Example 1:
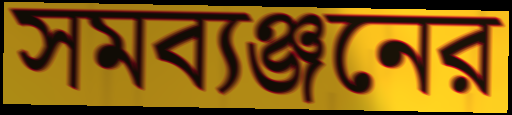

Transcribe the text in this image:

সমব্যঞ্জনের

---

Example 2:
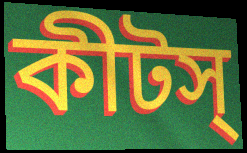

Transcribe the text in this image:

কীটস্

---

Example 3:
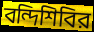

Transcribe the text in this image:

বন্দিশিবির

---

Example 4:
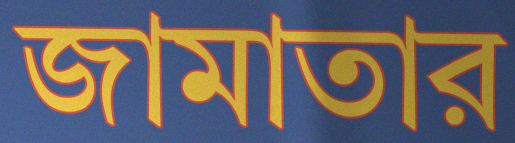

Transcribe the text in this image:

জামাতার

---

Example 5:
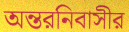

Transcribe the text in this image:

অন্তরনিবাসীর